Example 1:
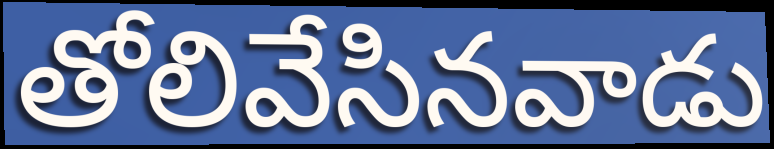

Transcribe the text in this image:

తోలివేసినవాడు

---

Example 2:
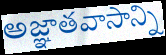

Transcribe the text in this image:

అజ్ఞాతవాసాన్ని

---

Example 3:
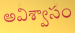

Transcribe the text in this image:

అవిశ్వాసం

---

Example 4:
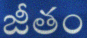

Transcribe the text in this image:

జీతం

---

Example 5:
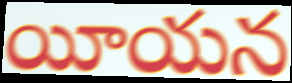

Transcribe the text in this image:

యీయన